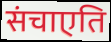
संचाएति